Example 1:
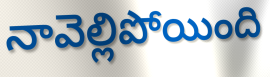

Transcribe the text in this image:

నావెల్లిపోయింది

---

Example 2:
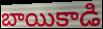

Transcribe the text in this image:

బాయికాడి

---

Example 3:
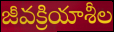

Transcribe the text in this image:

జీవక్రియాశీల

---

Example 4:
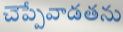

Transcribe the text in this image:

చెప్పేవాడతను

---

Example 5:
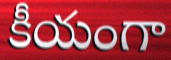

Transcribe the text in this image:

కీయంగా